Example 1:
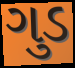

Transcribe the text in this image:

ગુડ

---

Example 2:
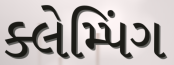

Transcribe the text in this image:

ક્લેમ્પિંગ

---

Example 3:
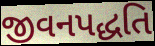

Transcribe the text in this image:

જીવનપદ્ધતિ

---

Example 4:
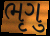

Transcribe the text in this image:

ભૃગુ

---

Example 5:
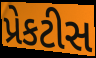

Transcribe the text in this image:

પ્રેકટીસ